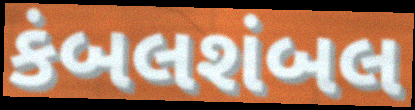
કંબલશંબલ